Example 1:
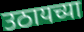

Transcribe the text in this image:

उठायच्या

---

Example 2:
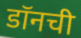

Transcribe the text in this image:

डॉनची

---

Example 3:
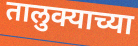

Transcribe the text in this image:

तालुक्याच्या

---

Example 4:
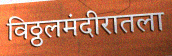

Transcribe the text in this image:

विठ्ठलमंदीरातला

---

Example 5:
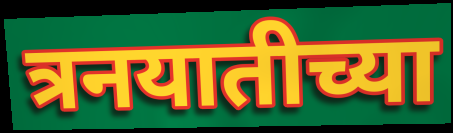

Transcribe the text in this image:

त्रनयातीच्या